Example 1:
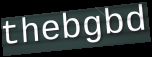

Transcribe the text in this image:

thebgbd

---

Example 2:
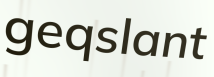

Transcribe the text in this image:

geqslant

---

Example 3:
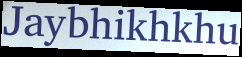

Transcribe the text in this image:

Jaybhikhkhu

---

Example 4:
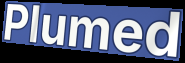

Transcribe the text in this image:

Plumed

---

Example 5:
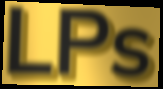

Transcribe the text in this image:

LPs